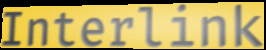
Interlink